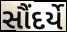
સૌંદર્યે